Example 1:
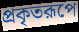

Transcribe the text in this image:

প্রকৃতরূপে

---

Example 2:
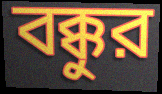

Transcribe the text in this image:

বক্কুর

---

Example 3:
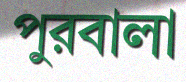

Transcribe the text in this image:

পুরবালা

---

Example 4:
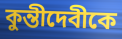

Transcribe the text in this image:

কুন্তীদেবীকে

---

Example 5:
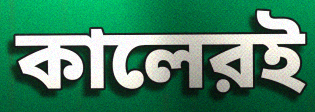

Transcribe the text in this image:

কালেরই